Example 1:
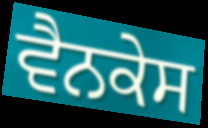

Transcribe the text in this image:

ਵੈਨਕੇਸ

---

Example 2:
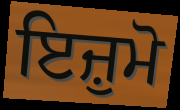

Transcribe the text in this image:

ਇਜ਼ੁਮੋ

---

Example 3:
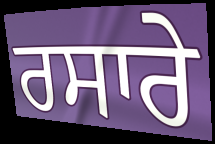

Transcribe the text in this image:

ਰਸਾਰੇ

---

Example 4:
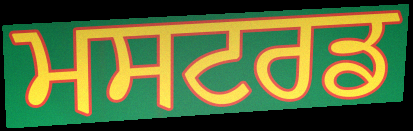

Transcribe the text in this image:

ਮਸਟਰਡ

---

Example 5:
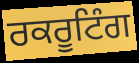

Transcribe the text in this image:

ਰਕਰੂਟਿੰਗ